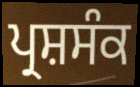
ਪ੍ਰਸ਼ਸੰਕ